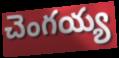
చెంగయ్య